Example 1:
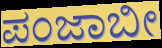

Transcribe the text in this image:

ಪಂಜಾಬೀ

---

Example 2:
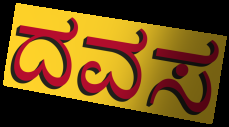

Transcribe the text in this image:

ದವಸ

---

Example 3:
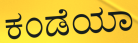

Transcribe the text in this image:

ಕಂಡೆಯಾ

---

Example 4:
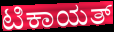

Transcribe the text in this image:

ಟಿಕಾಯತ್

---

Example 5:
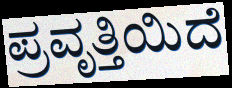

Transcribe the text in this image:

ಪ್ರವೃತ್ತಿಯಿದೆ